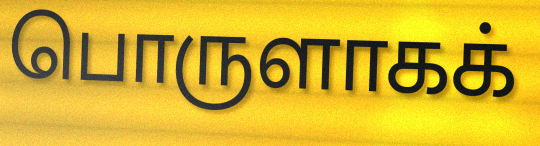
பொருளாகக்